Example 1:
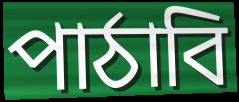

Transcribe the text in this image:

পাঠাবি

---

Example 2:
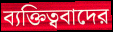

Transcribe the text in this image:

ব্যক্তিত্ববাদের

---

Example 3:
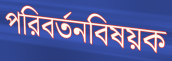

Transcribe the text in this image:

পরিবর্তনবিষয়ক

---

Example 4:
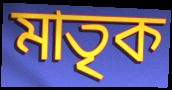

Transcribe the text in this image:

মাতৃক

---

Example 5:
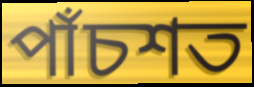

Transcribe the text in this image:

পাঁচশত